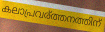
കലാപ്രവര്ത്തനത്തിന്